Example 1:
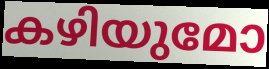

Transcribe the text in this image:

കഴിയുമോ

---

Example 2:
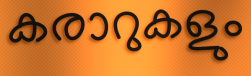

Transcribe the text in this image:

കരാറുകളും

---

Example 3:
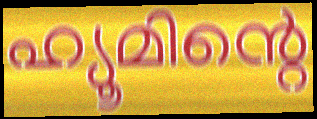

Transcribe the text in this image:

ഹ്യൂമിന്റെ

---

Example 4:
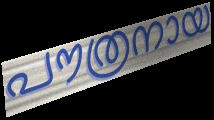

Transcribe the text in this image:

പൗത്രനായ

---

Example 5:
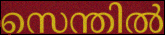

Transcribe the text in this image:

സെന്തിൽ